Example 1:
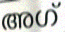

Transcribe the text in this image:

അഗ്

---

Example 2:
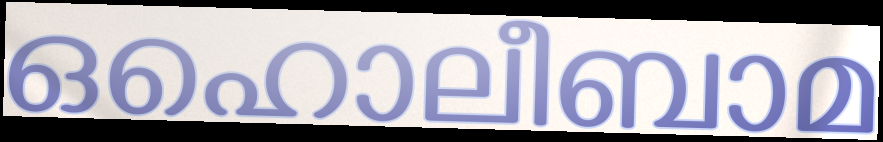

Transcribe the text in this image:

ഒഹൊലീബാമ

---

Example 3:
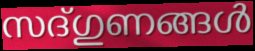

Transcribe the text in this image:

സദ്ഗുണങ്ങൾ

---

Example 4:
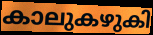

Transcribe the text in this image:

കാലുകഴുകി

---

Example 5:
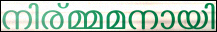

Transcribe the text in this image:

നിര്മ്മമനായി